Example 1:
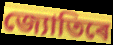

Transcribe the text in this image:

জ্যোতিৰে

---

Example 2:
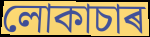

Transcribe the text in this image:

লোকাচাৰ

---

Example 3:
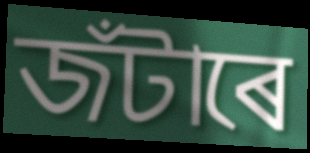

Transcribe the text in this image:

জঁটাৰে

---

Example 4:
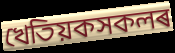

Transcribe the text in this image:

খেতিয়কসকলৰ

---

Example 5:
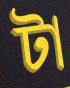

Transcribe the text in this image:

টা